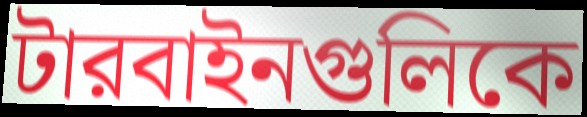
টারবাইনগুলিকে